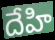
దేహి